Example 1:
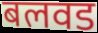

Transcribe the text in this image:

बलवड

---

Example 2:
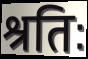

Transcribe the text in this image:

श्रतिः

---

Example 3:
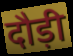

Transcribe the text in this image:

दौड़ी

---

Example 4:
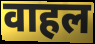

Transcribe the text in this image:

वाहल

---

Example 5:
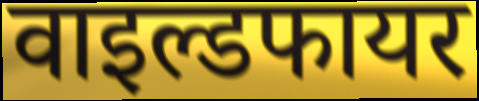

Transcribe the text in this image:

वाइल्डफायर